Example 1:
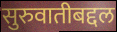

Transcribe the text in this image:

सुरुवातीबद्दल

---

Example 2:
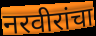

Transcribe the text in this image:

नरवीरांचा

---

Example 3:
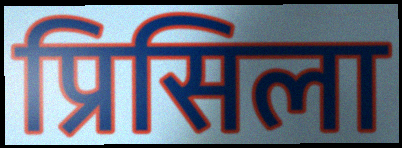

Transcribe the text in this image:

प्रिसिला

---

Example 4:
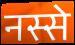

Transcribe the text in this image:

नस्से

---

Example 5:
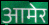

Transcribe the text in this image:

आमेर